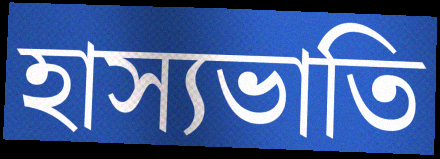
হাস্যভাতি